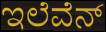
ಇಲೆವೆನ್